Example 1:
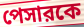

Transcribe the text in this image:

পেসারকে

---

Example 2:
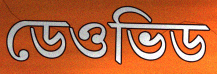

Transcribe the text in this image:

ডেওভিড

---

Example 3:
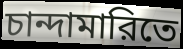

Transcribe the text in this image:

চান্দামারিতে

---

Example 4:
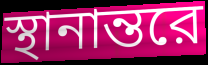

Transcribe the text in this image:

স্থানান্তরে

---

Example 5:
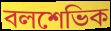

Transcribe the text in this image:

বলশেভিক